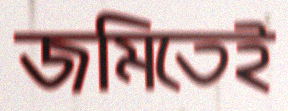
জমিতেই